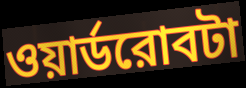
ওয়ার্ডরোবটা